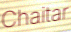
Chaitar